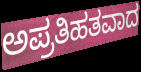
ಅಪ್ರತಿಹತವಾದ